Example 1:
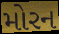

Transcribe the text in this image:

મોરન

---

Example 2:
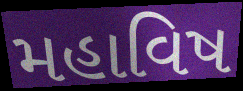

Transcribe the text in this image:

મહાવિષ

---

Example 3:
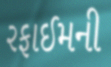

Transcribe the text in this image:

રફાઈમની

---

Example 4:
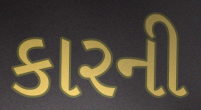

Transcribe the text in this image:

કારની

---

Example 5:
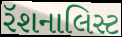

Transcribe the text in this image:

રૅશનાલિસ્ટ